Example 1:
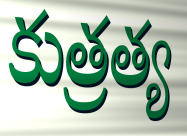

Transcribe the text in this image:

కుత్రత్య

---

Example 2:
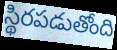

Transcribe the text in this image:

స్థిరపడుతోంది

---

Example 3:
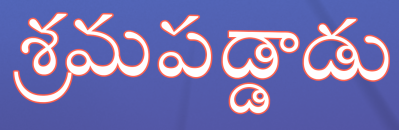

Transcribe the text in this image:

శ్రమపడ్డాడు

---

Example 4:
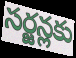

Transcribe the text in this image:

సర్జన్లకు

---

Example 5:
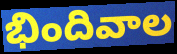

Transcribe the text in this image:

భిందివాల